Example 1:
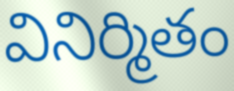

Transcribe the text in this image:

వినిర్మితం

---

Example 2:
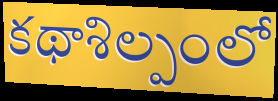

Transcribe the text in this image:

కథాశిల్పంలో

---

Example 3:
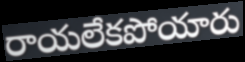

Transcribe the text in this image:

రాయలేకపోయారు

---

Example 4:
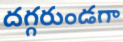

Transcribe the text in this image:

దగ్గరుండగా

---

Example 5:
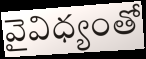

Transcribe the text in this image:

వైవిధ్యంతో